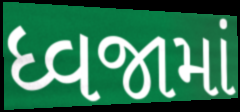
ધ્વજામાં